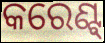
କରେଣ୍ଟ୍